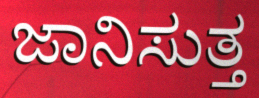
ಜಾನಿಸುತ್ತ